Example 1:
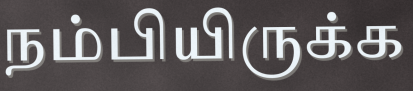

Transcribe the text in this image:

நம்பியிருக்க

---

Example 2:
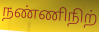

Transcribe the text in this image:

நண்ணிநிற்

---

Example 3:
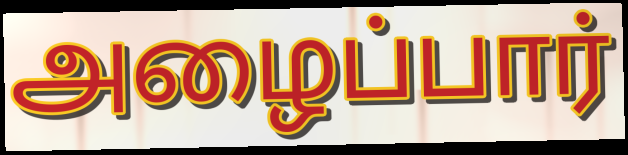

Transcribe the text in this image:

அழைப்பார்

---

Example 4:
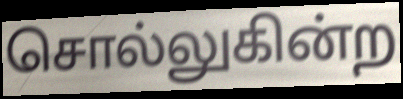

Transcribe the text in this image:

சொல்லுகின்ற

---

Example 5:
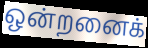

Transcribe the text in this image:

ஒன்றனைக்